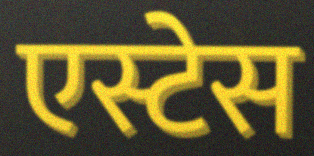
एस्टेस